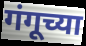
गंगूच्या